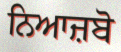
ਨਿਆਜ਼ਬੋ